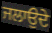
ਜਲਾਉਦੇ